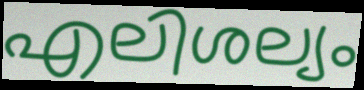
എലിശല്യം